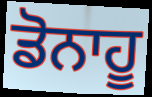
ਡੋਨਾਹੂ